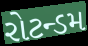
રોટન્ડમ